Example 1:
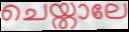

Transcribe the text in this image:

ചെയ്താലേ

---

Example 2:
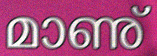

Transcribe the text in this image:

മാണു്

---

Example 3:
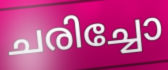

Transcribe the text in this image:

ചരിച്ചോ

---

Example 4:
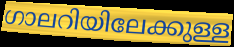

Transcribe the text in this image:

ഗാലറിയിലേക്കുള്ള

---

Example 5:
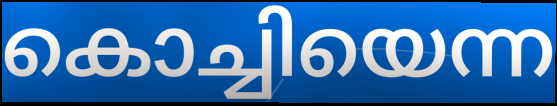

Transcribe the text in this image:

കൊച്ചിയെന്ന